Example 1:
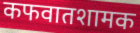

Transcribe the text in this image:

कफवातशामक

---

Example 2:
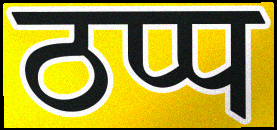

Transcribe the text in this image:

ठप्प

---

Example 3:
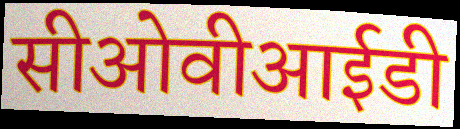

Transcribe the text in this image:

सीओवीआईडी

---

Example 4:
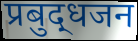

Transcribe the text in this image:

प्रबुद्धजन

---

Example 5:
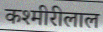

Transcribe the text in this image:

कश्मीरीलाल